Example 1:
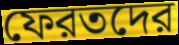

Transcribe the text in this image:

ফেরতদের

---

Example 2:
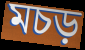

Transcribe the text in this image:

মচড়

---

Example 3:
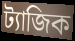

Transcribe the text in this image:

ট্যাজিক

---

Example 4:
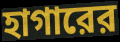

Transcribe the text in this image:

হাগারের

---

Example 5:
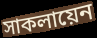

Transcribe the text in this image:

সাকলায়েন